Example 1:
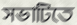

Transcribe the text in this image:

সভাটিতে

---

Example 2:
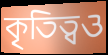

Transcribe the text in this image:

কৃতিত্বও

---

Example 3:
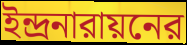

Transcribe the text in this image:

ইন্দ্রনারায়নের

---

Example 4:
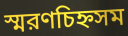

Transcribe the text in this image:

স্মরণচিহ্নসম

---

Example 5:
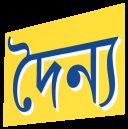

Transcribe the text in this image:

দৈন্য